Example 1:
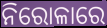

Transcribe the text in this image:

ନିରୋଳାରେ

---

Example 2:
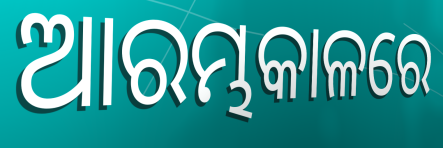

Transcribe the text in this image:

ଆରମ୍ଭକାଳରେ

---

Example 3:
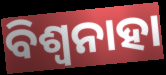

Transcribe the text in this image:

ବିଶ୍ଵନାହା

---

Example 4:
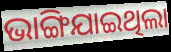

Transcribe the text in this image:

ଭାଙ୍ଗିଯାଇଥିଲା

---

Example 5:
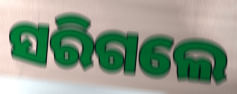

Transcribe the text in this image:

ସରିଗଲେ